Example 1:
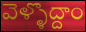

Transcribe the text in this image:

వెళ్ళొద్దాం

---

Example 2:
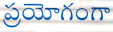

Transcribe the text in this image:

ప్రయోగంగా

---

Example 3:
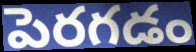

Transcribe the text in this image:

పెరగడం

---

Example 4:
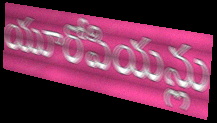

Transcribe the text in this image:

యూరోపియన్లు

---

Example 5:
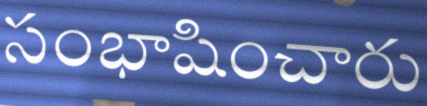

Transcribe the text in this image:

సంభాషించారు